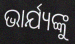
ଭାର୍ଯ୍ୟଙ୍କୁ